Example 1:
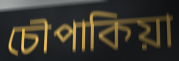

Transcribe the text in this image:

চৌপাকিয়া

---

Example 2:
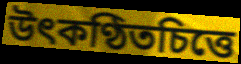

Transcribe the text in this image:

উৎকণ্ঠিতচিত্তে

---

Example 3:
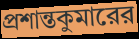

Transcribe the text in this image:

প্রশান্তকুমারের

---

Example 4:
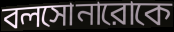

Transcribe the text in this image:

বলসোনারোকে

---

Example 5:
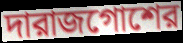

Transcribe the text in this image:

দারাজগোশের